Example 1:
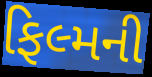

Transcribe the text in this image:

ફિલ્મની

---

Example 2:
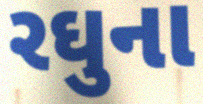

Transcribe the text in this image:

રઘુના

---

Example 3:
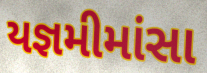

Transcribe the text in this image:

યજ્ઞમીમાંસા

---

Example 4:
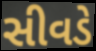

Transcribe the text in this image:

સીવડે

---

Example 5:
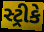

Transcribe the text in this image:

સ્ટ્રીકે